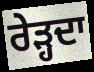
ਰੇੜ੍ਹਦਾ